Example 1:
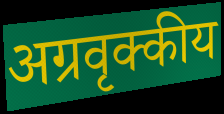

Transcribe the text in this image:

अग्रवृक्कीय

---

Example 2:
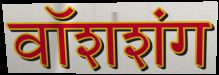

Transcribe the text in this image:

वॉशशंग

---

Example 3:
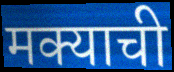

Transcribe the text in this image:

मक्याची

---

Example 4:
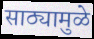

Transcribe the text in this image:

साठ्यामुळे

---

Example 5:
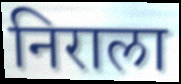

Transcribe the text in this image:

निराला